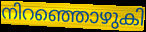
നിറഞ്ഞൊഴുകി